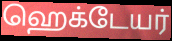
ஹெக்டேயர்